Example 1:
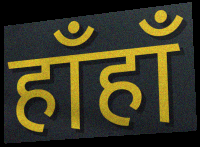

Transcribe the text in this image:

हाँहाँ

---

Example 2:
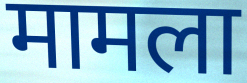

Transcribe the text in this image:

मामला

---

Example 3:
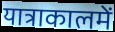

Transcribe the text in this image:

यात्राकालमें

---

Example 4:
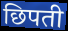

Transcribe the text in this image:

छिपती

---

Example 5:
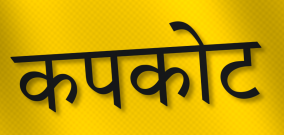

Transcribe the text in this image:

कपकोट